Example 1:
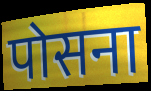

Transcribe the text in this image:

पोसना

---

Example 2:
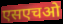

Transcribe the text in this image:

एसएचओ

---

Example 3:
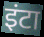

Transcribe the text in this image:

इंटा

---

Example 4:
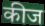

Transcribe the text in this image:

कीज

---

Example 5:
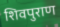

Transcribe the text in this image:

शिवपुराण